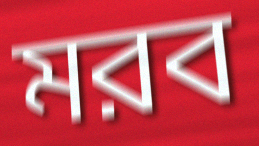
মরব